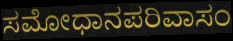
ಸಮೋಧಾನಪರಿವಾಸಂ